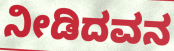
ನೀಡಿದವನ